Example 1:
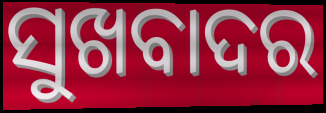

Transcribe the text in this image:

ସୁଖବାଦର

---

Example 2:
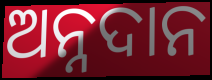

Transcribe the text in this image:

ଅନ୍ନଦାନ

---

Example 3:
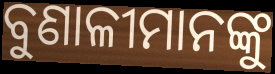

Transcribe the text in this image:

ବୁଣାଳୀମାନଙ୍କୁ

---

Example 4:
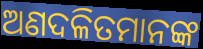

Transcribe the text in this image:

ଅଣଦଳିତମାନଙ୍କ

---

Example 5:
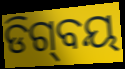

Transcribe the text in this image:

ଡିଗ୍‌ବୟ